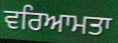
ਵਰਿਆਮਤਾ